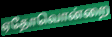
ஏதோவொன்றை